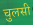
चुलसी